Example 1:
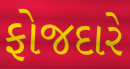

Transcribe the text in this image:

ફોજદારે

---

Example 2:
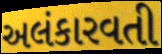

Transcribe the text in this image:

અલંકારવતી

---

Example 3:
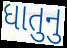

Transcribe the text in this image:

ધાતુનુ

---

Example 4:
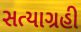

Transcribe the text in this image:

સત્યાગ્રહી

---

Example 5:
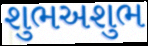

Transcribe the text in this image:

શુભઅશુભ